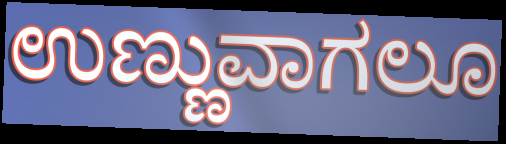
ಉಣ್ಣುವಾಗಲೂ